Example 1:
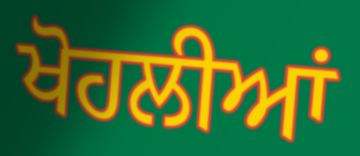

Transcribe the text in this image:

ਖੋਹਲੀਆਂ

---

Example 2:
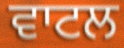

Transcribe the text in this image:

ਵਾਟਲ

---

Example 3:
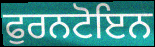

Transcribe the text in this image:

ਫੁਰਨਟੋਇਨ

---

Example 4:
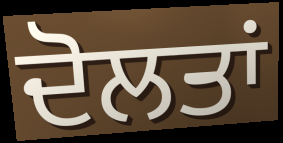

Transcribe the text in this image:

ਦੋਲਤਾਂ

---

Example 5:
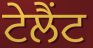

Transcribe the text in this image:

ਟੇਲੈਂਟ